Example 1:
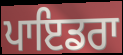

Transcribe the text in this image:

ਪਾਇਡਰਾ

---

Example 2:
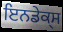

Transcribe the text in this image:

ਇਨਡੇਕ੍ਸ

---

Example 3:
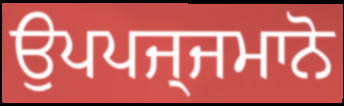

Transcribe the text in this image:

ਉਪਪਜ੍ਜਮਾਨੋ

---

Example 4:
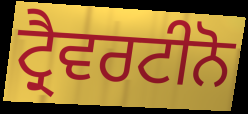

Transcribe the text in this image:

ਟ੍ਰੈਵਰਟੀਨੋ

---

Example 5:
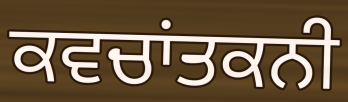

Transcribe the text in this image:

ਕਵਚਾਂਤਕਨੀ